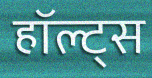
हॉल्ट्स